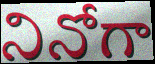
నినోగా